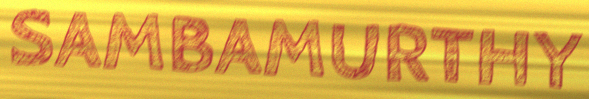
SAMBAMURTHY